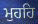
ਮੁਹਹਿ